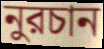
নুরচান